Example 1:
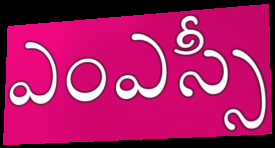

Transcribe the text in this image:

ఎంఎస్సీ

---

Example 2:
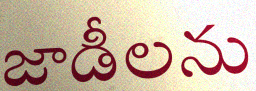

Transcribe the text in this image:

జాడీలను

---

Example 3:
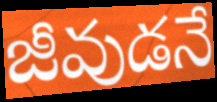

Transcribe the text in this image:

జీవుడనే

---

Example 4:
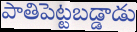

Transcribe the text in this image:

పాతిపెట్టబడ్డాడు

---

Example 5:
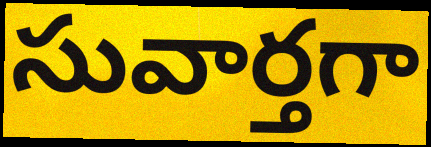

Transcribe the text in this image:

సువార్తగా